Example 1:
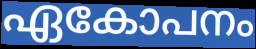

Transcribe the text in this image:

ഏകോപനം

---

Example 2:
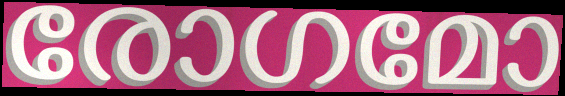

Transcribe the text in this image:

രോഗമോ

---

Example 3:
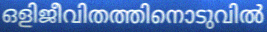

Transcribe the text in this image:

ഒളിജീവിതത്തിനൊടുവിൽ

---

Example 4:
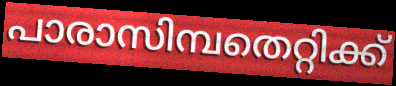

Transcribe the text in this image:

പാരാസിമ്പതെറ്റിക്ക്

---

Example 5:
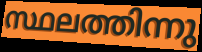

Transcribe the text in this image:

സ്ഥലത്തിന്നു